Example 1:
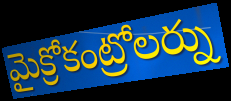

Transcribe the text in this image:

మైక్రోకంట్రోలర్ను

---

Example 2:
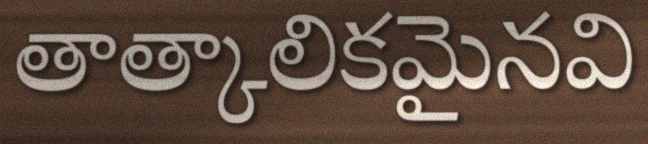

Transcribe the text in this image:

తాత్కాలికమైనవి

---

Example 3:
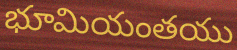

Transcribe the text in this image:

భూమియంతయు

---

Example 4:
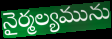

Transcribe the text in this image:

నైర్మల్యమును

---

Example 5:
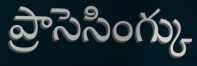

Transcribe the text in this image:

ప్రాసెసింగ్కు